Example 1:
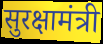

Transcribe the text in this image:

सुरक्षामंत्री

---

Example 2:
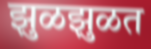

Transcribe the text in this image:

झुळझुळत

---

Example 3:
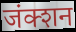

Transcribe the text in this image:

जंक्शन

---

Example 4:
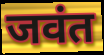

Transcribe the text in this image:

जवंत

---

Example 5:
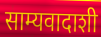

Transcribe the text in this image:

साम्यवादाशी